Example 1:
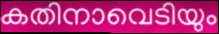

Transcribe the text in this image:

കതിനാവെടിയും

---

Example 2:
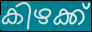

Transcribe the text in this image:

കിഴക്ക്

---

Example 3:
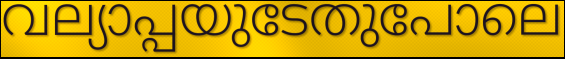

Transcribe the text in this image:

വല്യാപ്പയുടേതുപോലെ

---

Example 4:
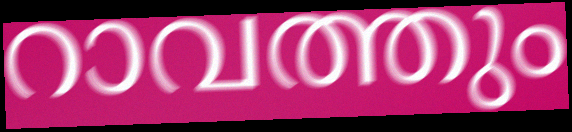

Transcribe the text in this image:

റാവത്തും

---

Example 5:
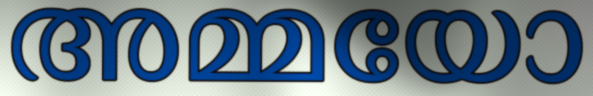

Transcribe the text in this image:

അമ്മയോ